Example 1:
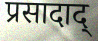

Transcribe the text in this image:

प्रसादाद्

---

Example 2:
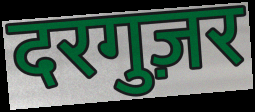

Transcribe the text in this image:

दरगुज़र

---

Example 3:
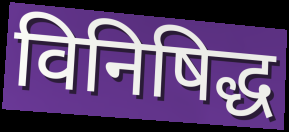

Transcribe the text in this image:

विनिषिद्ध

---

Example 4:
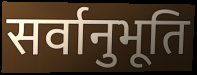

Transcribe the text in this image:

सर्वानुभूति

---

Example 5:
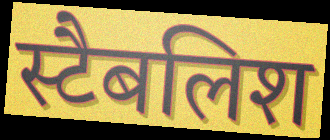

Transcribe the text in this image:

स्टैबलिश